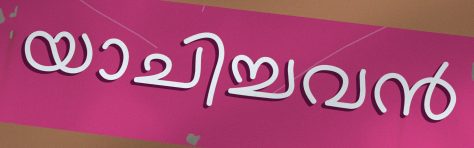
യാചിച്ചവൻ